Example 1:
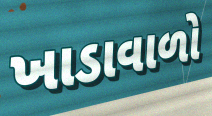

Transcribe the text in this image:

ખાડાવાળો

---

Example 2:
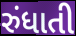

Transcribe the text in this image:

રુંધાતી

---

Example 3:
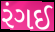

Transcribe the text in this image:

રંગઈ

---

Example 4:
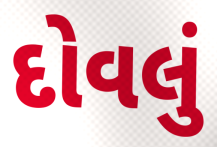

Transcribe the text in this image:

દોવલું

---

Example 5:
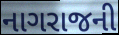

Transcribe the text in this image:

નાગરાજની